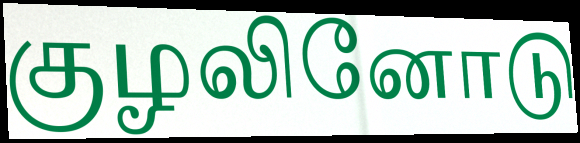
குழலினோடு